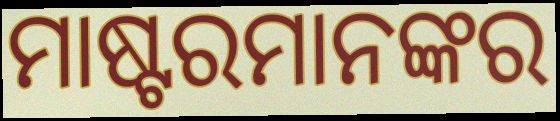
ମାଷ୍ଟରମାନଙ୍କର